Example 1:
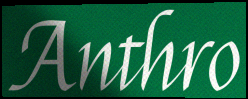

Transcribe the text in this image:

Anthro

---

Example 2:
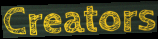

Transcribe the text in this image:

Creators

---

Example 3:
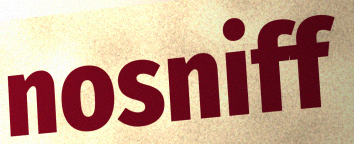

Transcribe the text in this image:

nosniff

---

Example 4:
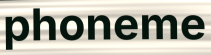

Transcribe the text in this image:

phoneme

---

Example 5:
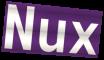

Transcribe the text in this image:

Nux